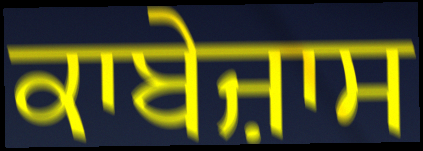
ਕਾਬੇਜ਼ਾਸ